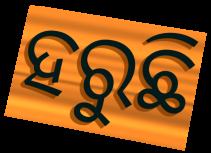
ହରୁଛି